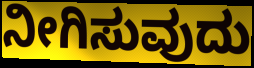
ನೀಗಿಸುವುದು